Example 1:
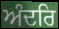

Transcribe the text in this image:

ਅੰਦਰਿ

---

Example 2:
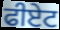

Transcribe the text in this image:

ਫੀਏਟ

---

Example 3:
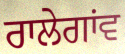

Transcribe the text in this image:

ਰਾਲੇਗਾਂਵ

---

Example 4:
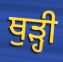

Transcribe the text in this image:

ਥੁੜ੍ਹੀ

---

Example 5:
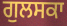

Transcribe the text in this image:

ਗੁਲਸਕਾ